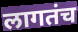
लागतंच